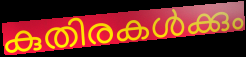
കുതിരകൾക്കും